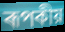
ৰূপকীয়